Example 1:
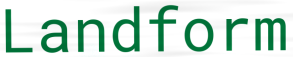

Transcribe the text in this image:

Landform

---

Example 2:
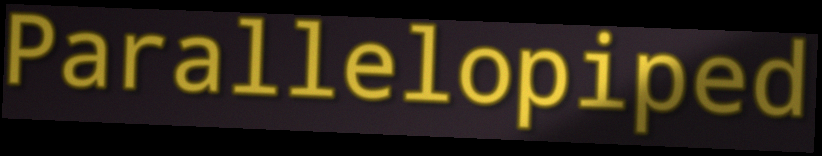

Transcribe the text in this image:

Parallelopiped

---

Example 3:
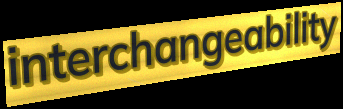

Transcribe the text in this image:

interchangeability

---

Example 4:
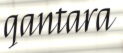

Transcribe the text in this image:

qantara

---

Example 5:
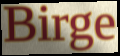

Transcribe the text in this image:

Birge